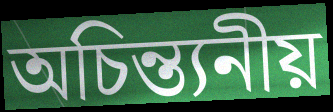
অচিন্ত্যনীয়